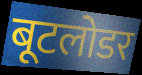
बूटलोडर